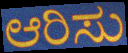
ಆರಿಸು